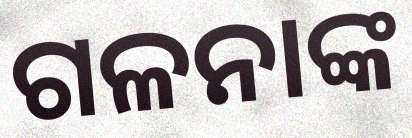
ଗଳନାଙ୍କ